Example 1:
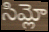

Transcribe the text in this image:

సిమ్లో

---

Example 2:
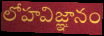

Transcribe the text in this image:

లోహవిజ్ఞానం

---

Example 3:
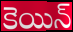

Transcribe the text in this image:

కెయిన్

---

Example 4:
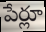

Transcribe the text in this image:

పేర్లూ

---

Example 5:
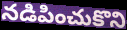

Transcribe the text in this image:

నడిపించుకొని